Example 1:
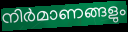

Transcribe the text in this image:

നിർമാണങ്ങളും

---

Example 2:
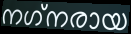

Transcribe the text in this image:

നഗ്‌നരായ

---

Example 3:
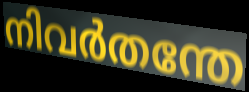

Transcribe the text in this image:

നിവർതന്തേ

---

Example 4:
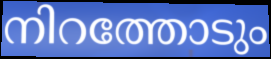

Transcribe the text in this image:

നിറത്തോടും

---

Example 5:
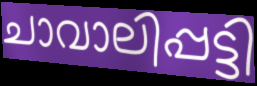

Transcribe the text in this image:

ചാവാലിപ്പട്ടി